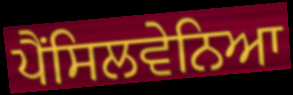
ਪੈਂਸਿਲਵੇਨਿਆ